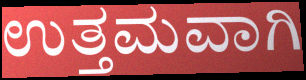
ಉತ್ತಮವಾಗಿ